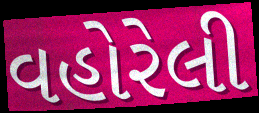
વહોરેલી